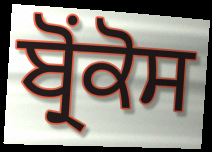
ਬ੍ਰੋਂਕੋਸ